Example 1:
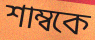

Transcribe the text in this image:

শাম্বকে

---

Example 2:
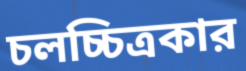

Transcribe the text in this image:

চলচ্চিত্রকার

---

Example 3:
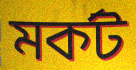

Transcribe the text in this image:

মর্কট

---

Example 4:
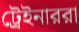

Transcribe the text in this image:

ট্রেইনাররা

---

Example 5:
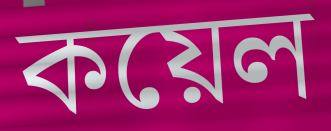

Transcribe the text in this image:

কয়েল